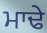
ਮਾਢੇ